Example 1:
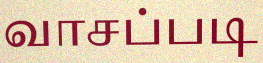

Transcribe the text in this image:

வாசப்படி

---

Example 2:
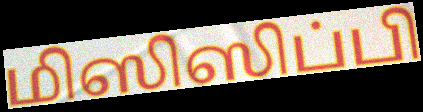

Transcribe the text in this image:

மிஸிஸிப்பி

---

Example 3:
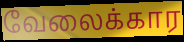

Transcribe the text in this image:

வேலைக்கார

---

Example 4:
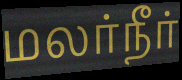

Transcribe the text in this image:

மலர்நீர்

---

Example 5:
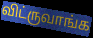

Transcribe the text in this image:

விட்ருவாங்க